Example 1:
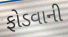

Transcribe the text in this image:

ફોડવાની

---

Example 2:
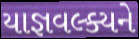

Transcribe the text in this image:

યાજ્ઞવલ્ક્યને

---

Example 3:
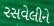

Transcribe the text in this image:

રસવેલીને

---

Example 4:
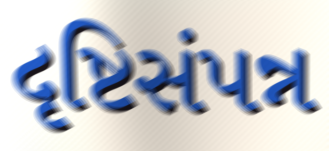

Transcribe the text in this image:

દૃષ્ટિસંપન્ન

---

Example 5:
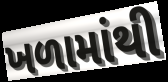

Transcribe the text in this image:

ખળામાંથી